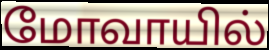
மோவாயில்